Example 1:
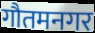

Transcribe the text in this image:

गौतमनगर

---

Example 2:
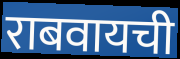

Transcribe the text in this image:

राबवायची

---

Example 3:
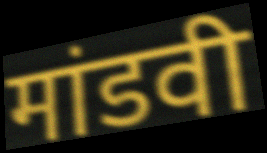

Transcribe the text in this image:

मांडवी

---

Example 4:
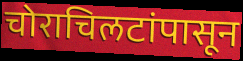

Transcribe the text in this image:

चोराचिलटांपासून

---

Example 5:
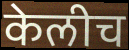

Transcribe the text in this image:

केलीच